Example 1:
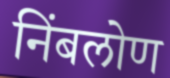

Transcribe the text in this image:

निंबलोण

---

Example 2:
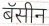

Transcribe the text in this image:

बॅसीन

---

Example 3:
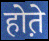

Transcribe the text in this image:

होत़े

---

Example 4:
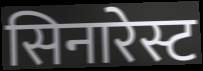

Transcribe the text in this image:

सिनारेस्ट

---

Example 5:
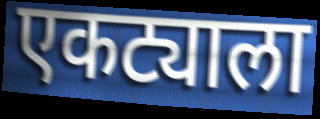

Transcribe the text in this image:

एकट्याला